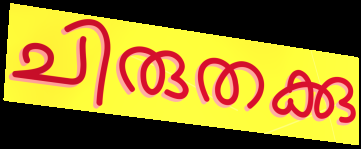
ചിരുതക്കു